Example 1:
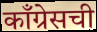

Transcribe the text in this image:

काँग्रेसची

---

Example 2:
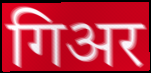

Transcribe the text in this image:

गिअर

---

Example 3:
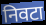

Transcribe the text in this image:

निवटा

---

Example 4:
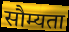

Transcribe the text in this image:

सौम्यता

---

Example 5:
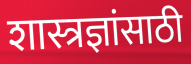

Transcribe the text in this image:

शास्त्रज्ञांसाठी